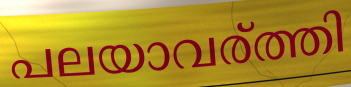
പലയാവര്ത്തി